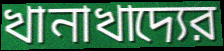
খানাখাদ্যের